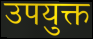
उपयुक्त